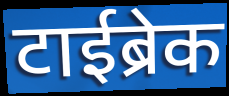
टाईब्रेक